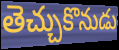
తెచ్చుకొనుడు